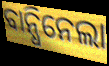
ବାନ୍ଧିନେଲା